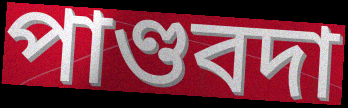
পাণ্ডবদা